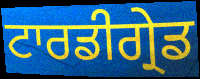
ਟਾਰਡੀਗ੍ਰੇਡ